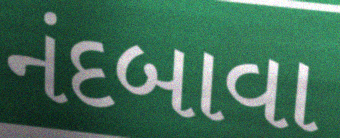
નંદબાવા